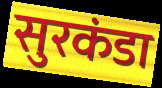
सुरकंडा